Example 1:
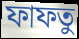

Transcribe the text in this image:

ফাফতু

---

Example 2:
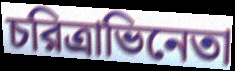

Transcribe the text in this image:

চরিত্রাভিনেতা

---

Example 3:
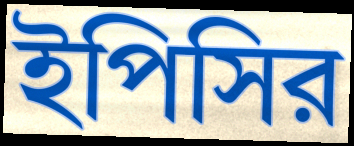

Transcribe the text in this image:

ইপিসির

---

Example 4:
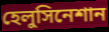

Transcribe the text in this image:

হেলুসিনেশান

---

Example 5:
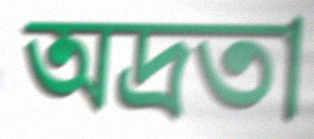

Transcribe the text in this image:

অদ্রতা